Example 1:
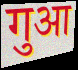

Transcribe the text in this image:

गुआ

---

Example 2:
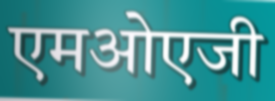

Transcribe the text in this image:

एमओएजी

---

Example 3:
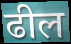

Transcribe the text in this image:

ढील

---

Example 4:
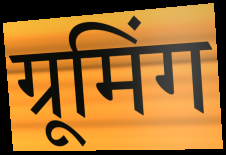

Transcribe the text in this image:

ग्रूमिंग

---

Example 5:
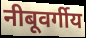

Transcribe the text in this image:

नीबूवर्गीय